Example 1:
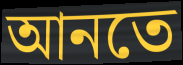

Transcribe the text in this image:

আনতে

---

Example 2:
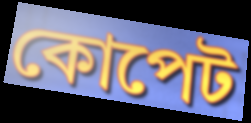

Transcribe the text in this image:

কোপেট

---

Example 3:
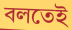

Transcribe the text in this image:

বলতেই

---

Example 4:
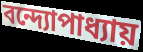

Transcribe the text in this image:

বন্দ্যোপাধ্যায়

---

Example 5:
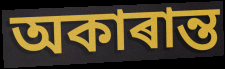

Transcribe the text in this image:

অকাৰান্ত